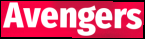
Avengers